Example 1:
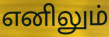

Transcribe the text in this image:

எனிலும்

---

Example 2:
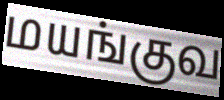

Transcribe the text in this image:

மயங்குவ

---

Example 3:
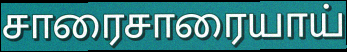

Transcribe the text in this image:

சாரைசாரையாய்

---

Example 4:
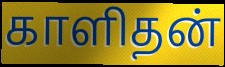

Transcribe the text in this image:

காளிதன்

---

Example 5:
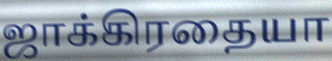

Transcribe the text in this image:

ஜாக்கிரதையா